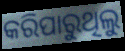
କରିପାରୁଥିଲୁ